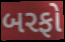
બરફો